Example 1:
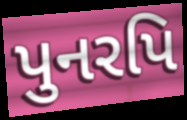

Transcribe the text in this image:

પુનરપિ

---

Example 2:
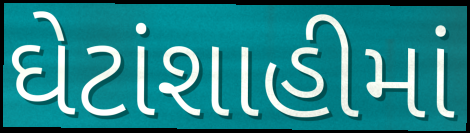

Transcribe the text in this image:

ઘેટાંશાહીમાં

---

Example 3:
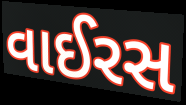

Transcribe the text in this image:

વાઈરસ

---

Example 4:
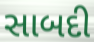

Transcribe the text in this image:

સાબદી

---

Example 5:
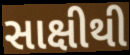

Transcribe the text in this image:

સાક્ષીથી